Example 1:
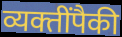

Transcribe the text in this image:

व्यक्‍तींपैकी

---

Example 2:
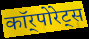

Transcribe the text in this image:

कॉर्पोरेट्‌स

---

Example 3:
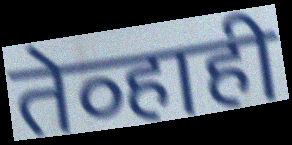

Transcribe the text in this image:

तेव्हाही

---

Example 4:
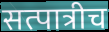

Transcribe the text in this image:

सत्पात्रीच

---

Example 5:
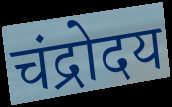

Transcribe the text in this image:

चंद्रोदय